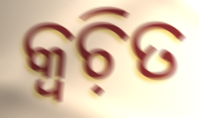
କ୍ୱଚ଼ିତ